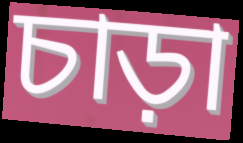
চাড়া